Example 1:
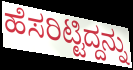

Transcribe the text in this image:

ಹೆಸರಿಟ್ಟಿದ್ದನ್ನು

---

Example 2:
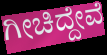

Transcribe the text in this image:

ಗೀಚಿದ್ದೇವೆ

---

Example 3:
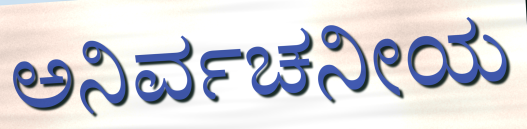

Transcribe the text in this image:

ಅನಿರ್ವಚನೀಯ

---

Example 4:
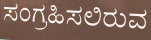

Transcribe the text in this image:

ಸಂಗ್ರಹಿಸಲಿರುವ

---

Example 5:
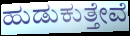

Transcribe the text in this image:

ಹುಡುಕುತ್ತೇವೆ